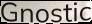
Gnostic